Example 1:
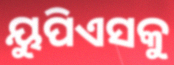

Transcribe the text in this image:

ୟୁପିଏସକୁ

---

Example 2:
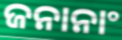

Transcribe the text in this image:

ଜନାନାଂ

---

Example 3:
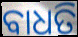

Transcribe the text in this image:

ବାଧତି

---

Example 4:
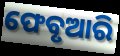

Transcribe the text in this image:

ଫେବୃଆରି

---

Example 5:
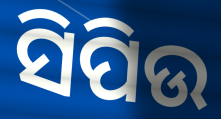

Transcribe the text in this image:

ସିପିଉ